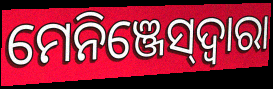
ମେନିଞ୍ଜେସ୍‌ଦ୍ୱାରା